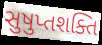
સુષુપ્તશક્તિ